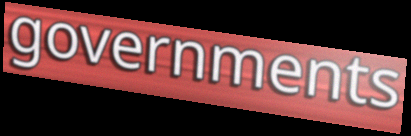
governments